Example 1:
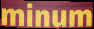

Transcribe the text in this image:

minum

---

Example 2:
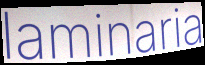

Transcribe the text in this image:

laminaria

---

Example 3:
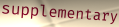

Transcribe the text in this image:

supplementary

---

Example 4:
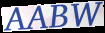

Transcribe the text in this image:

AABW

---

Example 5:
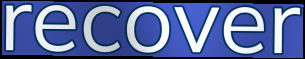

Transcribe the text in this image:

recover